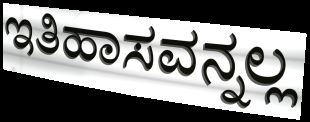
ಇತಿಹಾಸವನ್ನಲ್ಲ